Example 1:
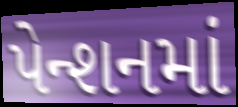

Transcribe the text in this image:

પેન્શનમાં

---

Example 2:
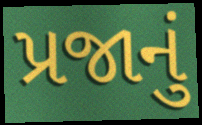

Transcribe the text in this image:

પ્રજાનું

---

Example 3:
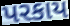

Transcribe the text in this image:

પરકાય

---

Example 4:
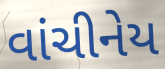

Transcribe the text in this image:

વાંચીનેય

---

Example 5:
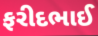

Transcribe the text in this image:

ફરીદભાઈ